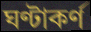
ঘণ্টাকর্ণ